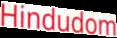
Hindudom